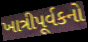
ખાત્રીપૂર્વકનો